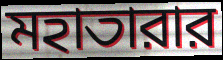
মহাতারার